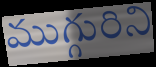
ముగ్గురిని